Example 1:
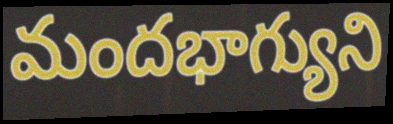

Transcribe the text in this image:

మందభాగ్యుని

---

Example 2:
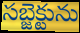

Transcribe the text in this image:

సబ్జెక్టును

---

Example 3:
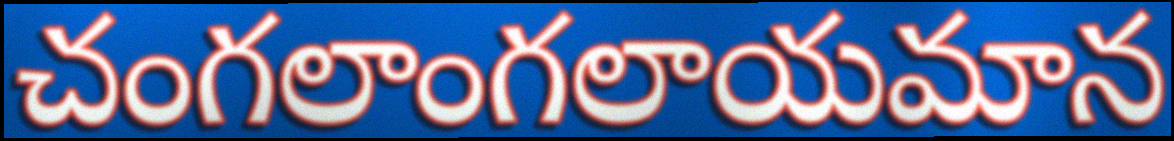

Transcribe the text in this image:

చంగలాంగలాయమాన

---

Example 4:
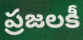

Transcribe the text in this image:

ప్రజలకీ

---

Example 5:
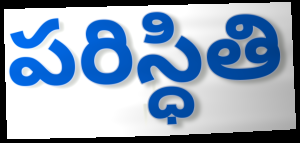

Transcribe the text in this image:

పరిస్ధితి